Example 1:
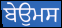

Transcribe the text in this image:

ਬੇਉਮਸ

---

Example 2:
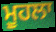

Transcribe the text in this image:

ਮੂਹਲਾ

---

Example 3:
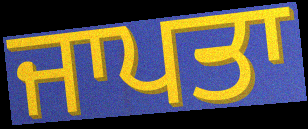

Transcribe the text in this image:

ਜਾਪਤਾ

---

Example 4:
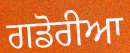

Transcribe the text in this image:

ਗਡੋਰੀਆ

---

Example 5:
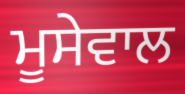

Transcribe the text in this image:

ਮੂਸੇਵਾਲ